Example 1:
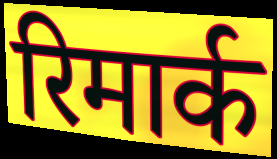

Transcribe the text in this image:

रिमार्क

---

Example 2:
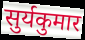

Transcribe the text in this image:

सुर्यकुमार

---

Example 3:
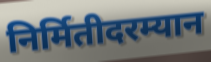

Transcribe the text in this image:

निर्मितीदरम्यान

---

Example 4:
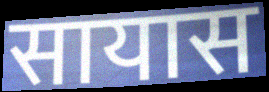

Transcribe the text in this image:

सायास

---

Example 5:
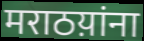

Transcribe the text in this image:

मराठय़ांना